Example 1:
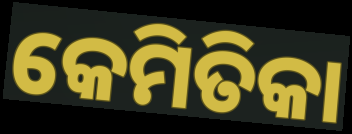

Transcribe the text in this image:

କେମିତିକା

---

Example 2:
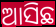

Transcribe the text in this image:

ଆସିଛ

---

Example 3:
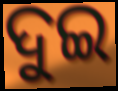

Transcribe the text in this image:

ଦୁଇ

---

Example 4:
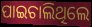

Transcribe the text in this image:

ପାଇଚାଲିଥିଲେ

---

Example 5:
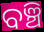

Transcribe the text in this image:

ବଞ୍ଚି